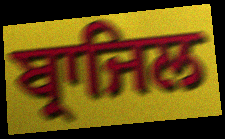
ਬ੍ਰਾਜਿਲ